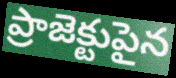
ప్రాజెక్టుపైన